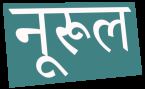
नूरूल